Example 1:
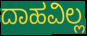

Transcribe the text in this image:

ದಾಹವಿಲ್ಲ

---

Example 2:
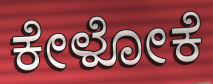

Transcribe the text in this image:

ಕೇಳೋಕೆ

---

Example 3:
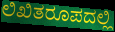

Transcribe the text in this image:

ಲಿಖಿತರೂಪದಲ್ಲಿ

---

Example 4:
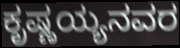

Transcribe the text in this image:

ಕೃಷ್ಣಯ್ಯನವರ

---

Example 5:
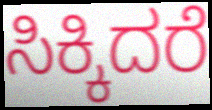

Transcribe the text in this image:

ಸಿಕ್ಕಿದರೆ